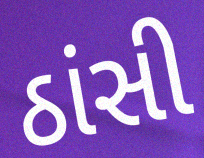
ઠાંસી